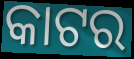
କାଟର